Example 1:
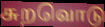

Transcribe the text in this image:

சுறவொடு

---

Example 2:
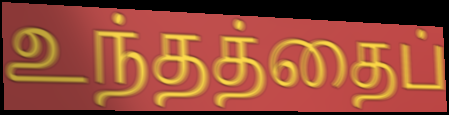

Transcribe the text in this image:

உந்தத்தைப்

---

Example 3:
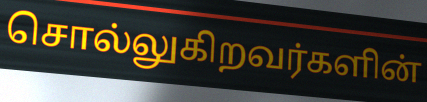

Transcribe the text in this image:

சொல்லுகிறவர்களின்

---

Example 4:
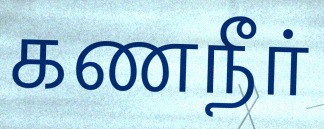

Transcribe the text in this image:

கணநீர்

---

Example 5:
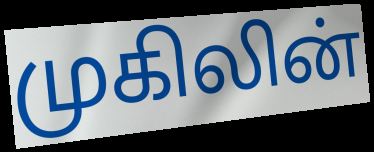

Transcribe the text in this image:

முகிலின்